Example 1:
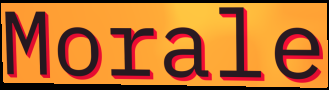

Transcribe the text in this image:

Morale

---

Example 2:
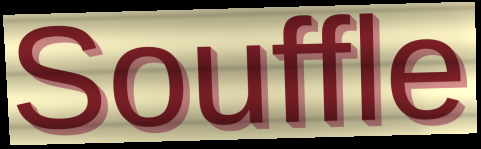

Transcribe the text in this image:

Souffle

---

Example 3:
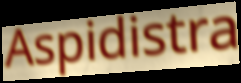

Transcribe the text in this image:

Aspidistra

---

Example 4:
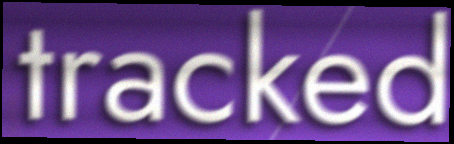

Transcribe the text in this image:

tracked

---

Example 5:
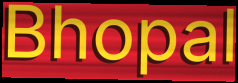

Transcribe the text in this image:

Bhopal